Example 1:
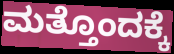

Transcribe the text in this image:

ಮತ್ತೊಂದಕ್ಕೆ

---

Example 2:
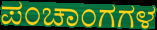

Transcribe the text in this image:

ಪಂಚಾಂಗಗಳ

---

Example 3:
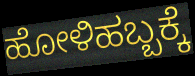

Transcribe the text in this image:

ಹೋಳಿಹಬ್ಬಕ್ಕೆ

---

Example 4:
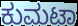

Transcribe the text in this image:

ಕುಮಟಾ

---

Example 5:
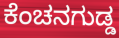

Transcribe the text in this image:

ಕೆಂಚನಗುಡ್ಡ